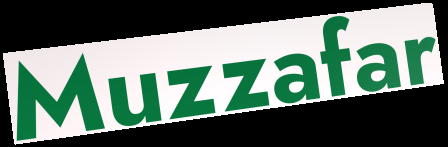
Muzzafar